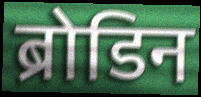
ब्रोडिन